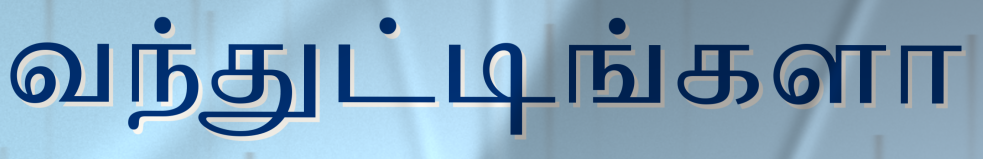
வந்துட்டிங்களா